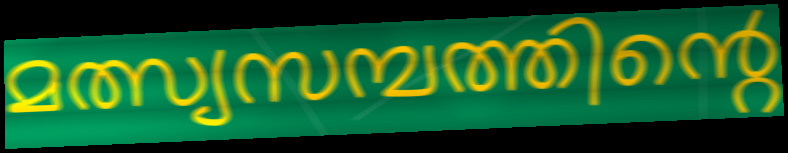
മത്സ്യസമ്പത്തിന്റെ